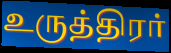
உருத்திரர்